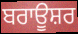
ਬਰਾਊਸ਼ਰ